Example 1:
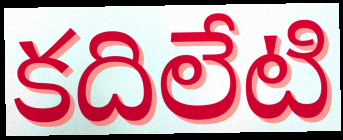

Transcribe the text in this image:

కదిలేటి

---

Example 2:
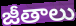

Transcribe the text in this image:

జీతాలు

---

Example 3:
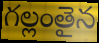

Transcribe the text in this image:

గల్లంతైన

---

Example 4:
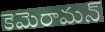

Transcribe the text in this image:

కెమెరామన్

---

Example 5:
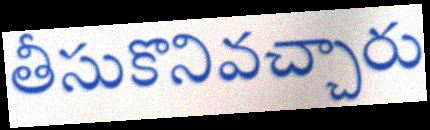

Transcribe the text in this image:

తీసుకొనివచ్చారు